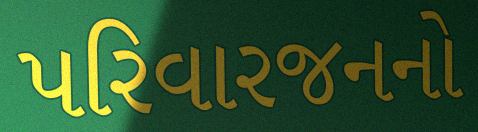
પરિવારજનનો